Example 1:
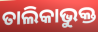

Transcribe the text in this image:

ତାଲିକାଭୁକ୍ତ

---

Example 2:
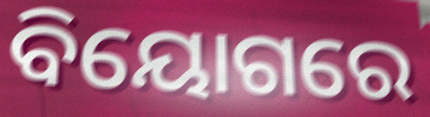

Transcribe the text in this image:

ବିୟୋଗରେ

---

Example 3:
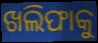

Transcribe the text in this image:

ଖଲିଫାକୁ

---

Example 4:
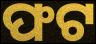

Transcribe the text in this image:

ଫଟ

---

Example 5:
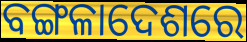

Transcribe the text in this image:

ବଙ୍ଗଳାଦେଶରେ